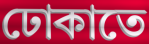
ঢোকাতে